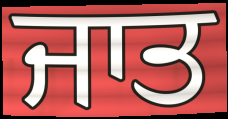
ਜਾਤ